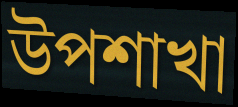
উপশাখা